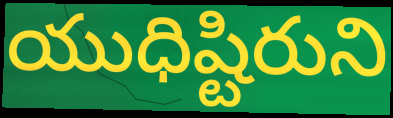
యుధిష్టిరుని